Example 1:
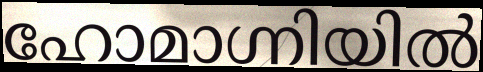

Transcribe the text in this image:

ഹോമാഗ്നിയിൽ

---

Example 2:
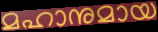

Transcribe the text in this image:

മഹാനുമായ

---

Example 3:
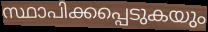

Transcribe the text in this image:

സ്ഥാപിക്കപ്പെടുകയും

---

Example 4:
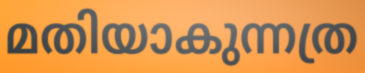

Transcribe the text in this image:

മതിയാകുന്നത്ര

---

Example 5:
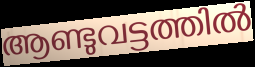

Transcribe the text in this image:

ആണ്ടുവട്ടത്തിൽ